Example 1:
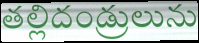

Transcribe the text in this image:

తల్లిదండ్రులును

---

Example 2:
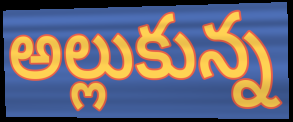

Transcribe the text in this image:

అల్లుకున్న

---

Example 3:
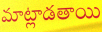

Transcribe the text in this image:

మాట్లాడతాయి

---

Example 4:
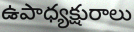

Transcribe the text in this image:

ఉపాధ్యక్షురాలు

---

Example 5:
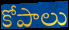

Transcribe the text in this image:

కోపాలు